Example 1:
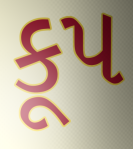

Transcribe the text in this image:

કૂપ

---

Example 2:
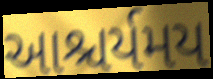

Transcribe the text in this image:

આશ્ચર્યમય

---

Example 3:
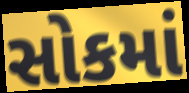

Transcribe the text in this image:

સોકમાં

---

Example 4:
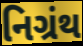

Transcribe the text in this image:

નિગ્રંથ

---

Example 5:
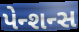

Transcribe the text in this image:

પેન્શન્સ